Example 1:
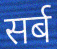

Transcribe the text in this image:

सर्ब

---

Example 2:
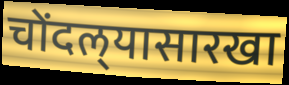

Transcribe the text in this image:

चोंदल्यासारखा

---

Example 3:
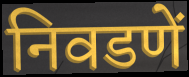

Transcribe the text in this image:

निवडणें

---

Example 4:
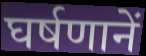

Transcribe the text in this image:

घर्षणानें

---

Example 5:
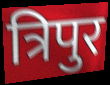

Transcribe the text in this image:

त्रिपुर